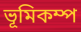
ভূমিকম্প